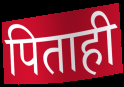
पिताही